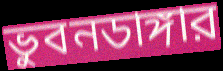
ভুবনডাঙ্গার